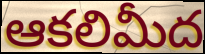
ఆకలిమీద